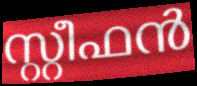
സ്റ്റീഫൻ